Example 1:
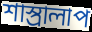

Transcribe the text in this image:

শাস্ত্রালাপ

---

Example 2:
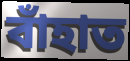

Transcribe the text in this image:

বাঁহাত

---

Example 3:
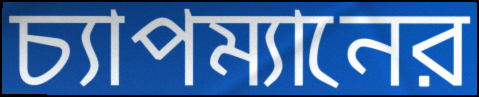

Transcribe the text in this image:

চ্যাপম্যানের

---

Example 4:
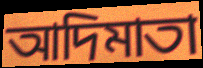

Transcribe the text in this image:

আদিমাতা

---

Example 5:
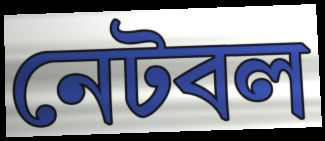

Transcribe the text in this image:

নেটবল